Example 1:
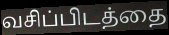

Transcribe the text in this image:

வசிப்பிடத்தை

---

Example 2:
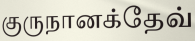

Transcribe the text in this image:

குருநானக்தேவ்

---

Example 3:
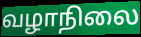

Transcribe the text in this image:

வழாநிலை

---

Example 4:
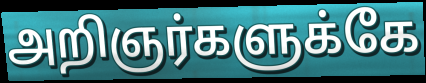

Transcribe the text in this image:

அறிஞர்களுக்கே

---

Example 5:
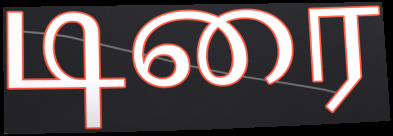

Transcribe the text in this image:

டிரை